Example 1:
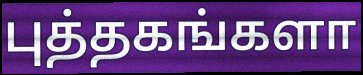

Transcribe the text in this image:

புத்தகங்களா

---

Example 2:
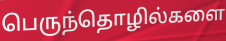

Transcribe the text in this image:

பெருந்தொழில்களை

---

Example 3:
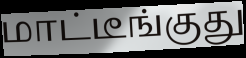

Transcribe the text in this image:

மாட்டீங்குது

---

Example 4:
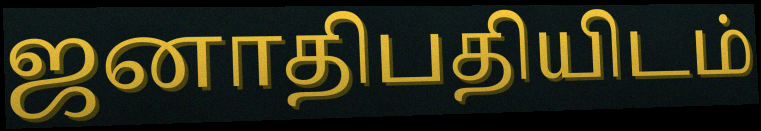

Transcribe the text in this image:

ஜனாதிபதியிடம்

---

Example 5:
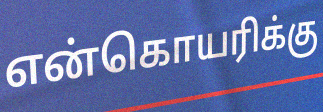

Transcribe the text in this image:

என்கொயரிக்கு